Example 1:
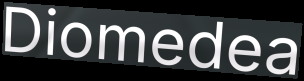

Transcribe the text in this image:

Diomedea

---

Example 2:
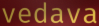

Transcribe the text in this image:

vedava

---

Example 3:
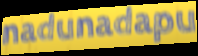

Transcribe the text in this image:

nadunadapu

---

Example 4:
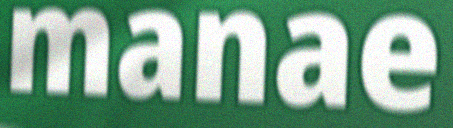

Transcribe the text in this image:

manae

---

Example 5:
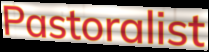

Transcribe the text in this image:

Pastoralist